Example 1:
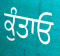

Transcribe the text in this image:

ਕੁੰਤਾਓ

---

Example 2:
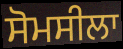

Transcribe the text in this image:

ਸੋਮਸੀਲਾ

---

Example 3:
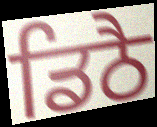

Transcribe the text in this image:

ਡਿਠੈ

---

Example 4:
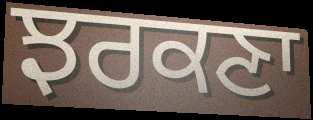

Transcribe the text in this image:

ਝਰਕਣਾ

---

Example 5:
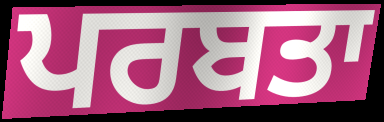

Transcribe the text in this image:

ਪਰਬਤਾ